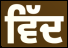
ਵਿੱਦ